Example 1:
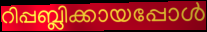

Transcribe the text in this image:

റിപ്പബ്ലിക്കായപ്പോൾ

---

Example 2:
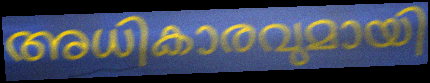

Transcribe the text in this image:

അധികാരവുമായി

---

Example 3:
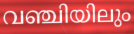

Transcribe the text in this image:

വഞ്ചിയിലും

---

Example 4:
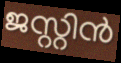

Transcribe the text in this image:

ജസ്റ്റിൻ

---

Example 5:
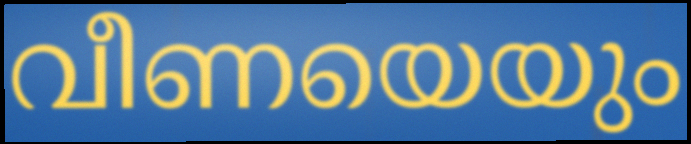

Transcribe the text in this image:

വീണയെയും